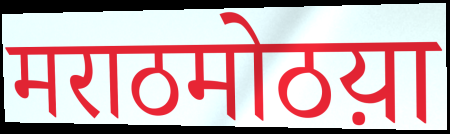
मराठमोठय़ा